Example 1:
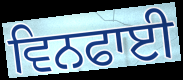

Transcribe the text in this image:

ਵਿਨਫਾਈ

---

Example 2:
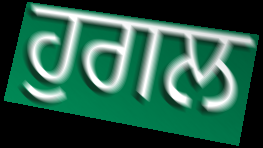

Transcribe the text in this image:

ਹੁਗਲ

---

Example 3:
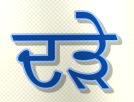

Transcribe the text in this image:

ਦੜੇ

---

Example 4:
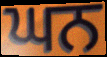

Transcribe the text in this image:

ਘਨ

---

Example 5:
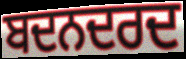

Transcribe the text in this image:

ਬਦਨਦਰਦ